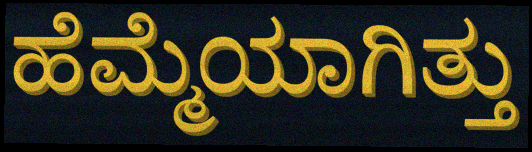
ಹೆಮ್ಮೆಯಾಗಿತ್ತು